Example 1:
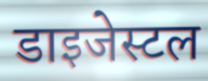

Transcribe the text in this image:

डाइजेस्टल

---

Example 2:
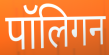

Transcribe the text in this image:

पॉलिगन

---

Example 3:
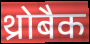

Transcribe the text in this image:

थ्रोबैक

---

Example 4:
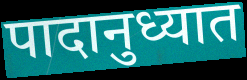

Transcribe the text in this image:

पादानुध्यात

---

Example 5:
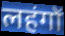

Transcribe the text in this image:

लहंगों